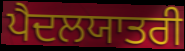
ਪੈਦਲਯਾਤਰੀ